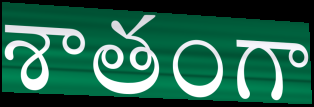
శాతంగా